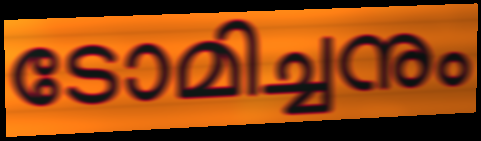
ടോമിച്ചനും